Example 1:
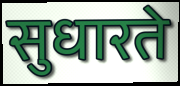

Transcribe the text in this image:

सुधारते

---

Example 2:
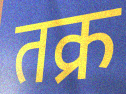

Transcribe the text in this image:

तक्र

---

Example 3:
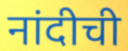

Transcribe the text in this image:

नांदीची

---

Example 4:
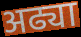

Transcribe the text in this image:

अढ्या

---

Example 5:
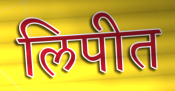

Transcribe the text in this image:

लिपीत